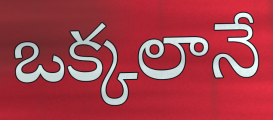
ఒక్కలానే